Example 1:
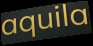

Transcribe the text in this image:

aquila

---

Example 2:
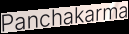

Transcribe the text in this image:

Panchakarma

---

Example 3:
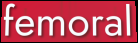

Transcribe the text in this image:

femoral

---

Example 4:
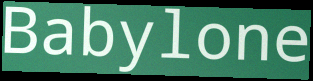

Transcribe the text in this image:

Babylone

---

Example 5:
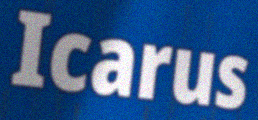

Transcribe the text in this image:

Icarus